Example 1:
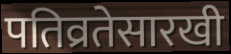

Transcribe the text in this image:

पतिव्रतेसारखी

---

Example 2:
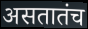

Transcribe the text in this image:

असतातंच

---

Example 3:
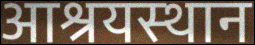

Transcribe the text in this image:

आश्रयस्थान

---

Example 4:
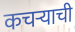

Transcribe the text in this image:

कचऱ्याची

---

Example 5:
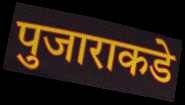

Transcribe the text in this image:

पुजाराकडे